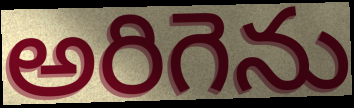
అరిగెను